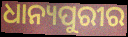
ଧାନ୍ୟପୁରୀର